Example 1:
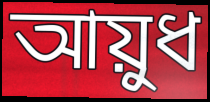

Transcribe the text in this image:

আয়ুধ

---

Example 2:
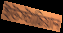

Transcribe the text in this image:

ইউস্টাচিয়ান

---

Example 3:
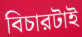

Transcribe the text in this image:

বিচারটাই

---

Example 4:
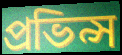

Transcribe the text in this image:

প্রভিন্স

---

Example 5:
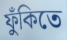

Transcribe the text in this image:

ফুঁকিতে